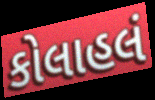
કોલાહલં